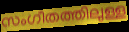
സംഗീതത്തിലുള്ള